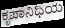
ಕೃಪಾನಿಧಿಯ